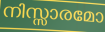
നിസ്സാരമോ